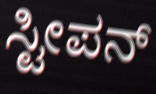
ಸ್ಟೀಪನ್